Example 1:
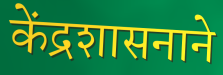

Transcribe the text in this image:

केंद्रशासनाने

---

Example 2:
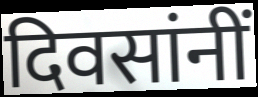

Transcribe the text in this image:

दिवसांनीं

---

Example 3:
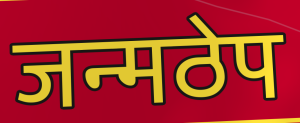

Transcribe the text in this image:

जन्मठेप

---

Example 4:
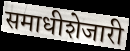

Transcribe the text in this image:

समाधीशेजारी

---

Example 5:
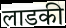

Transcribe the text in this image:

लाडकी